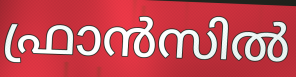
ഫ്രാൻസിൽ